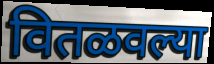
वितळवल्या